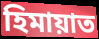
হিমায়াত